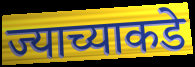
ज्याच्याकडे